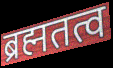
ब्रह्मतत्व